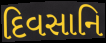
દિવસાનિ